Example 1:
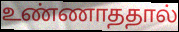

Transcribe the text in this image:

உண்ணாததால்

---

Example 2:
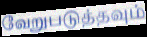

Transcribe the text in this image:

வேறுபடுத்தவும்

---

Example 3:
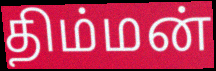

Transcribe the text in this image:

திம்மன்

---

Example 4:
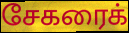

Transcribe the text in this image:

சேகரைக்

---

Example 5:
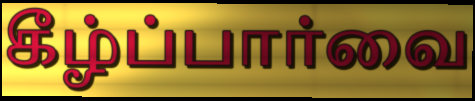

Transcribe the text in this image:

கீழ்ப்பார்வை